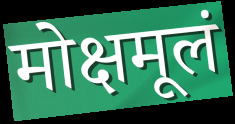
मोक्षमूलं